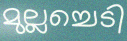
മുല്ലച്ചെടി